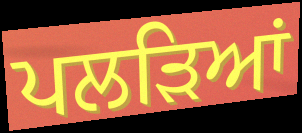
ਪਲੜਿਆਂ